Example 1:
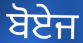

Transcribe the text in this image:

ਬੋਏਜ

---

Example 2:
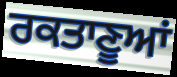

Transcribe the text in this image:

ਰਕਤਾਣੂਆਂ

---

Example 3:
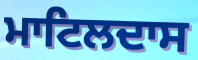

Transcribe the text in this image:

ਮਾਟਿਲਦਾਸ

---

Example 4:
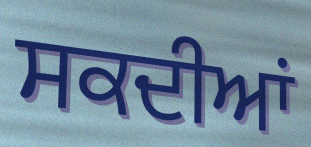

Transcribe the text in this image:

ਸਕਦੀਆਂ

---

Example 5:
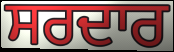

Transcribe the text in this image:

ਸਰਦਾਰ